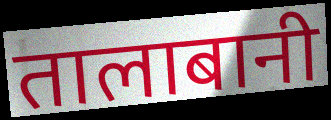
तालाबानी